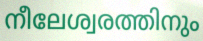
നീലേശ്വരത്തിനും